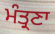
ਮੰਤ੍ਰਣਾ